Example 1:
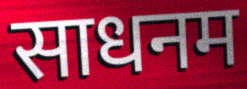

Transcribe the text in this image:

साधनम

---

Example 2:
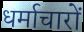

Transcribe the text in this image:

धर्माचारों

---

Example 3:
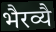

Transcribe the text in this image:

भैरव्यै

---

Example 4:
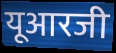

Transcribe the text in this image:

यूआरजी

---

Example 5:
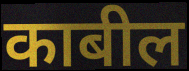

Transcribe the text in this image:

काबील